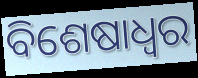
ବିଶେଷାଧ୍ଵର